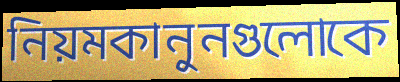
নিয়মকানুনগুলোকে